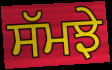
ਸੱਮਝੇ